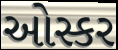
ઓસ્કર